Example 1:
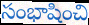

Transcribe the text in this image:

సంభాషించి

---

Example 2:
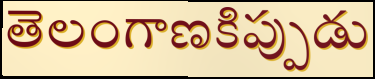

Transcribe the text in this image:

తెలంగాణకిప్పుడు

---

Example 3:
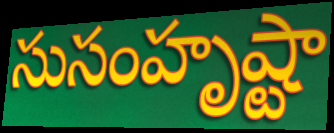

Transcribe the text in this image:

సుసంహృష్టా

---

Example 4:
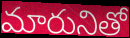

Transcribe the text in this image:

మారునితో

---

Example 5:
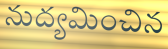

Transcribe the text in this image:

నుద్యమించిన